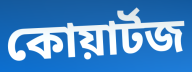
কোয়ার্টজ